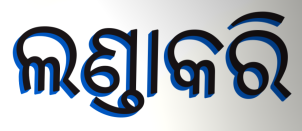
ଲଣ୍ଡାକରି